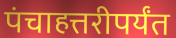
पंचाहत्तरीपर्यंत